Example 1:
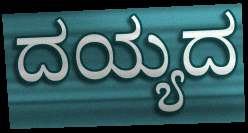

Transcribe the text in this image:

ದಯ್ಯದ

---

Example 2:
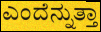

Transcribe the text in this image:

ಎಂದೆನ್ನುತ್ತಾ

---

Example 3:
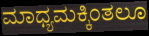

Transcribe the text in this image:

ಮಾಧ್ಯಮಕ್ಕಿಂತಲೂ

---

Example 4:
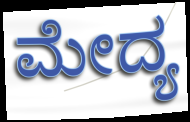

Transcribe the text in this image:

ಮೇದ್ಯ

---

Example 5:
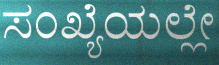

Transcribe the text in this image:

ಸಂಖ್ಯೆಯಲ್ಲೇ